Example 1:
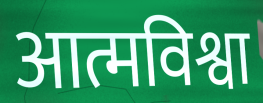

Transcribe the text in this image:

आत्मविश्वा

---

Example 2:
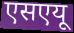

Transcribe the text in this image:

एसएयू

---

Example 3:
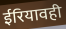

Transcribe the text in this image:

ईरियावही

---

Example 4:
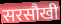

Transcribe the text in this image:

सरसौखी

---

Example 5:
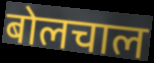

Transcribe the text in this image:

बोलचाल